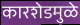
कारशेडमुळे